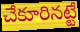
చేకూరినట్టే